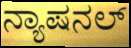
ನ್ಯಾಷನಲ್